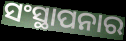
ସଂସ୍ଥାପନାର